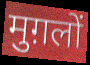
मुग़लों